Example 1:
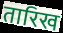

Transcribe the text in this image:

तारिख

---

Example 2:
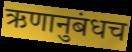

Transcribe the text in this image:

ऋणानुबंधच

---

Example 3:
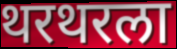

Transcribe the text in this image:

थरथरला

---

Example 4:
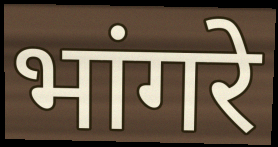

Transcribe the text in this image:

भांगरे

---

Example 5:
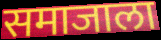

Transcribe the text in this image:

समाजाला